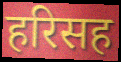
हरिसह